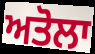
ਅਤੋਲਾ